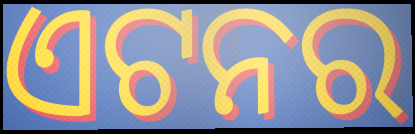
ଏଟନର